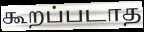
கூறப்படாத